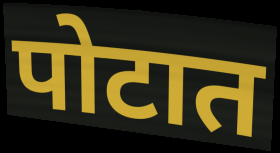
पोटात